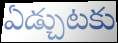
ఏడ్చుటకు